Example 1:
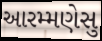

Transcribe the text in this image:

આરમ્મણેસુ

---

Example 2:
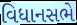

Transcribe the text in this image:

વિધાનસભે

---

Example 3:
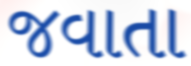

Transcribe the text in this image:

જવાતા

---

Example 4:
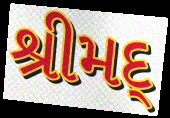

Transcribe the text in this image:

શ્રીમદ્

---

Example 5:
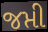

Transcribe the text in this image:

જપ્તી